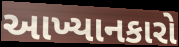
આખ્યાનકારો